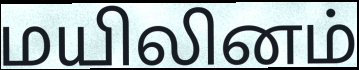
மயிலினம்